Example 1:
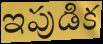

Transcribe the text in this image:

ఇపుడిక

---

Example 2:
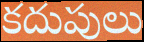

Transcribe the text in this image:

కదుపులు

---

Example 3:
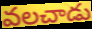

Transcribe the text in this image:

వలచాడు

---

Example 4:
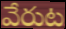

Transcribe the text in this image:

వేరుట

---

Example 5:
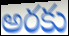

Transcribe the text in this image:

అరకు